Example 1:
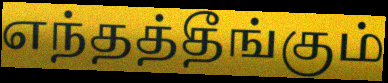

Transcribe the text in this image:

எந்தத்தீங்கும்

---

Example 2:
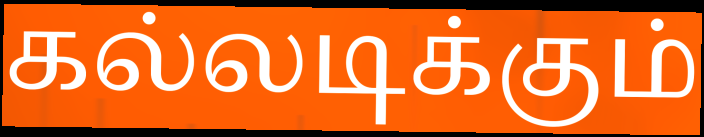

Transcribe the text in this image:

கல்லடிக்கும்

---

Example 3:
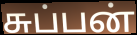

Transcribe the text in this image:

சுப்பன்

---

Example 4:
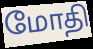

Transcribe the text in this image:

மோதி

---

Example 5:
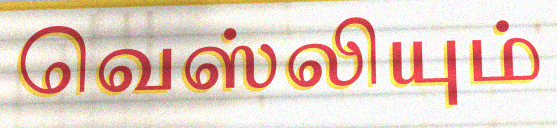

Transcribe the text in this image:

வெஸ்லியும்